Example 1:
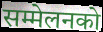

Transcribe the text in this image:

सम्मेलनको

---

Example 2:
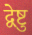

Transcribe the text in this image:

द्वेष्टु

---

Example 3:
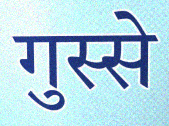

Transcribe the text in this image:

गुस्‍से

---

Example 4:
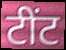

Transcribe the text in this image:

टींट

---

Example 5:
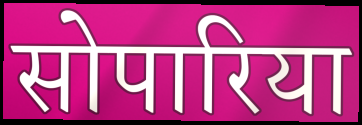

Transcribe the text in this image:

सोपारिया